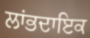
ਲਾਂਭਦਾਇਕ